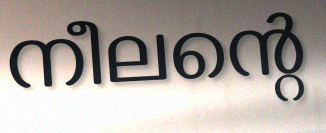
നീലന്റെ